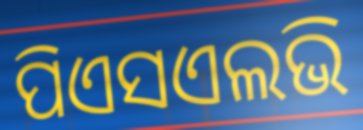
ପିଏସଏଲଭି